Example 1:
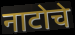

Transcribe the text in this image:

नाटोचे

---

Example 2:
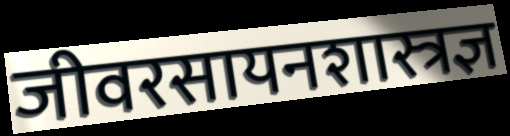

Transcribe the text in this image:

जीवरसायनशास्त्रज्ञ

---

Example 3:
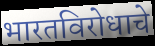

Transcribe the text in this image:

भारतविरोधाचे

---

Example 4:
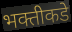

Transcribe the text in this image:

भक्तीकडे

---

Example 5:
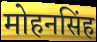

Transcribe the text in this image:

मोहनसिंह